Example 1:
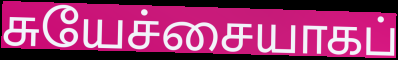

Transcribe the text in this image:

சுயேச்சையாகப்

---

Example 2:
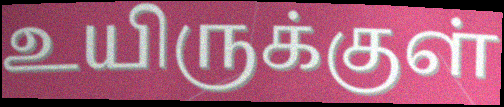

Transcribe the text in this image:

உயிருக்குள்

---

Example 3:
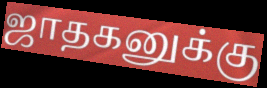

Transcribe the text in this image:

ஜாதகனுக்கு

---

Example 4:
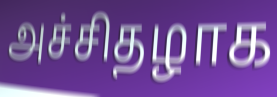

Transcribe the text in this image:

அச்சிதழாக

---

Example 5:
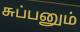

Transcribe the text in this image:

சுப்பனும்